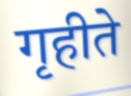
गृहीते